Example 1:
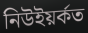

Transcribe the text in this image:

নিউইয়ৰ্কত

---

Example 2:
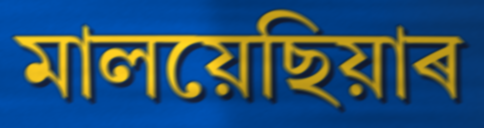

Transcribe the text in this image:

মালয়েছিয়াৰ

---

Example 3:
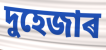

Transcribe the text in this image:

দুহেজাৰ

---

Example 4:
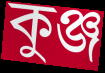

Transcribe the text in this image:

কুঞ্জ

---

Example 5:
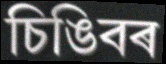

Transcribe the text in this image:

চিঙিবৰ